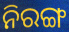
ନିରଙ୍ଗ